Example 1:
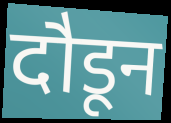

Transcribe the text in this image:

दौडून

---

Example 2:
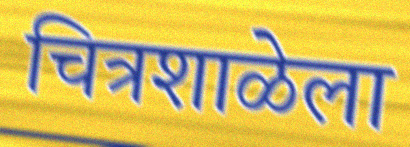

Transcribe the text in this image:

चित्रशाळेला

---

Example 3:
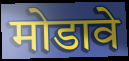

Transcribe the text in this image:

मोडावे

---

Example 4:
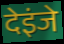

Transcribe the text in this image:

देइंजे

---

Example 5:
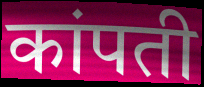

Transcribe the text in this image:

कांपती